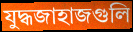
যুদ্ধজাহাজগুলি